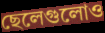
ছেলেগুলোও